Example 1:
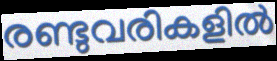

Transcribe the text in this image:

രണ്ടുവരികളിൽ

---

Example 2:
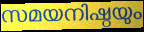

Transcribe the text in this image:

സമയനിഷ്ഠയും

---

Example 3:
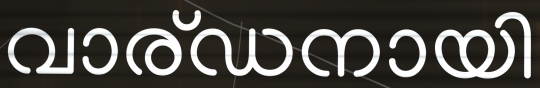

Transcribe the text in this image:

വാര്ഡനായി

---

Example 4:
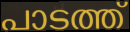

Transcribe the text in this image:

പാടത്ത്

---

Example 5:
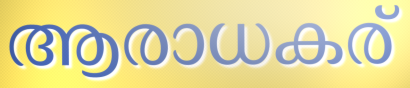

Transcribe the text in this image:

ആരാധകര്